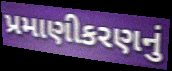
પ્રમાણીકરણનું